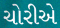
ચોરીએ